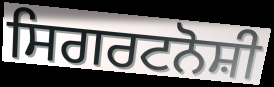
ਸਿਗਰਟਨੋਸ਼ੀ